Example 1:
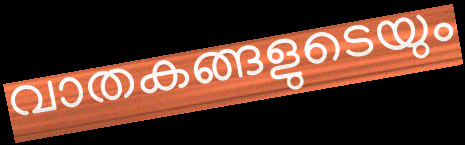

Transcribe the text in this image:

വാതകങ്ങളുടെയും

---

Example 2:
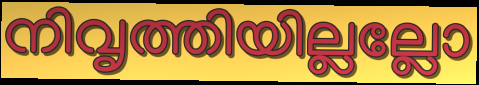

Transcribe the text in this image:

നിവൃത്തിയില്ലല്ലോ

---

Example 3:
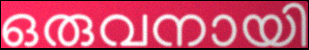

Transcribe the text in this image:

ഒരുവനായി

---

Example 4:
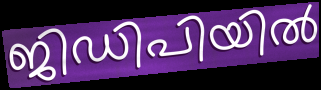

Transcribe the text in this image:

ജിഡിപിയിൽ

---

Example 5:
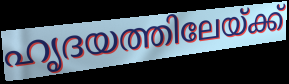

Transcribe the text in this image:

ഹൃദയത്തിലേയ്ക്ക്